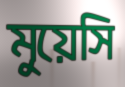
মুয়েসি